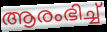
ആരംഭിച്ച്